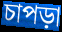
চাপড়া